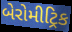
બેરોમીટ્રિક